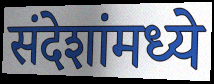
संदेशांमध्ये